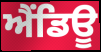
ਐਂਡਿਊ